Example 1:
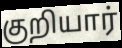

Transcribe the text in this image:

குறியார்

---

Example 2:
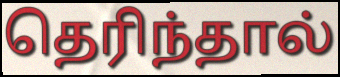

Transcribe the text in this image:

தெரிந்தால்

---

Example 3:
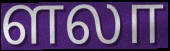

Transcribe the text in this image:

ளலா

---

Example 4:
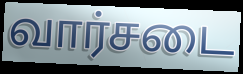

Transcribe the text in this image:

வார்சடை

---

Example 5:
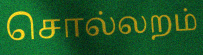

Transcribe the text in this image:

சொல்லறம்